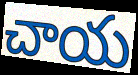
చాయ